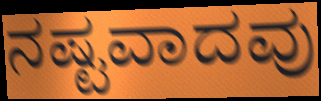
ನಷ್ಟವಾದವು